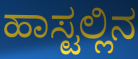
ಹಾಸ್ಟಲ್ಲಿನ